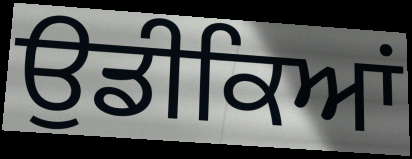
ਉਡੀਕਿਆਂ